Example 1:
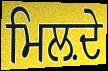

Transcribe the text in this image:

ਮਿਲ਼ਦੇ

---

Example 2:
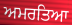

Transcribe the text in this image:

ਅਮਰਤਿਆ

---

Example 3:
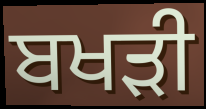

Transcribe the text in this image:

ਬਖੜੀ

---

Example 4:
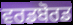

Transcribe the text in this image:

ਵਰਡਬੋਰਡ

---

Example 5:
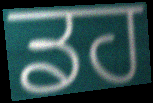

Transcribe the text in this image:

ਡਹ